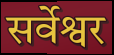
सर्वेश्वर